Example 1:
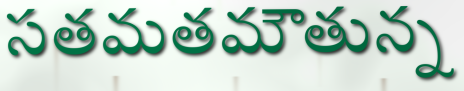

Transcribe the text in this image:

సతమతమౌతున్న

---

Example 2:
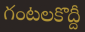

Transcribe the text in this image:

గంటలకొద్దీ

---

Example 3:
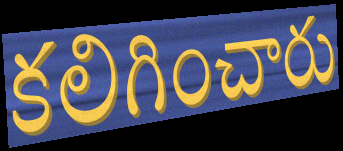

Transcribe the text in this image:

కలిగించారు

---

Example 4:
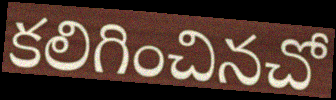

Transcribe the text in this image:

కలిగించినచో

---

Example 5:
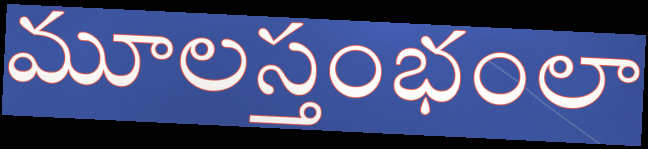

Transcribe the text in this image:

మూలస్తంభంలా